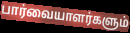
பார்வையாளர்களும்